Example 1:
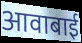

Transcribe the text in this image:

आवाबाई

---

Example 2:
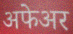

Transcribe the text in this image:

अफेअर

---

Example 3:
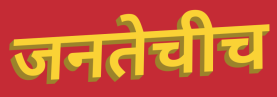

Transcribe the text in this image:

जनतेचीच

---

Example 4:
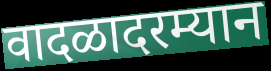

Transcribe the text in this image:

वादळादरम्यान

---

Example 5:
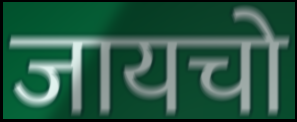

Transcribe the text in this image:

जायचो